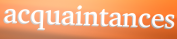
acquaintances